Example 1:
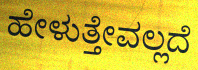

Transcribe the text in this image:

ಹೇಳುತ್ತೇವಲ್ಲದೆ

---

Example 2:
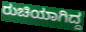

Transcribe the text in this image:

ರುಚಿಯಾಗಿದ್ದ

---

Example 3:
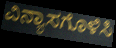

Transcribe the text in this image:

ವಿನ್ಯಾಸಗೊಳಿಸಿ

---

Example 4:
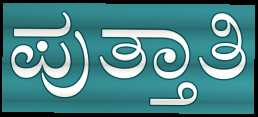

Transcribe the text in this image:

ಪುತ್ತಾತಿ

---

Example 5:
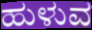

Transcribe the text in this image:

ಹುಳುವ